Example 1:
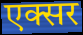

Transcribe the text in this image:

एक्सर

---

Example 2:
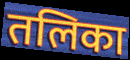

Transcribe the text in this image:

तलिका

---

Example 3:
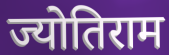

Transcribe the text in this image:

ज्योतिराम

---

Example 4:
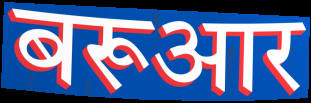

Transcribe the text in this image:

बरूआर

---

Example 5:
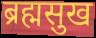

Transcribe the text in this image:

ब्रह्मसुख